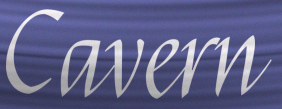
Cavern